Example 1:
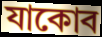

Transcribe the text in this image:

যাকোব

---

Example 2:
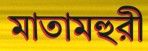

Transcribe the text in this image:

মাতামহুরী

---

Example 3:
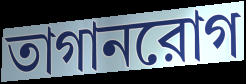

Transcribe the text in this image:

তাগানরোগ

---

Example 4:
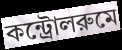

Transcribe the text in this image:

কন্ট্রোলরুমে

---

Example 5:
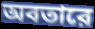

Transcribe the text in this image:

অবতারে